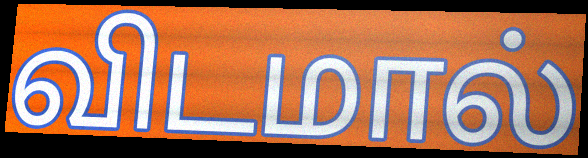
விடமால்